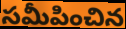
సమీపించిన